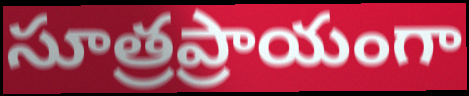
సూత్రప్రాయంగా